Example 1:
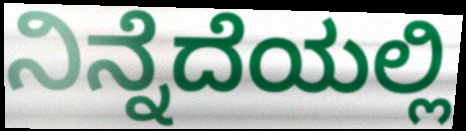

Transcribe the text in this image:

ನಿನ್ನೆದೆಯಲ್ಲಿ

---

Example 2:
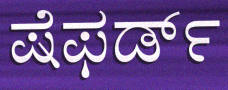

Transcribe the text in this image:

ಷೆಫರ್ಡ್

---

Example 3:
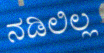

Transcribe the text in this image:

ನಡಿಲಿಲ್ಲ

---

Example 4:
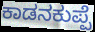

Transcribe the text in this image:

ಕಾಡನಕುಪ್ಪೆ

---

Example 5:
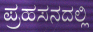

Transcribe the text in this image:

ಪ್ರಹಸನದಲ್ಲಿ